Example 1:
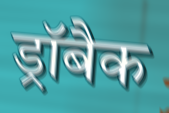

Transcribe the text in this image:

ड्रॉबैक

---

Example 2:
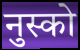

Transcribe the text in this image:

नुस्को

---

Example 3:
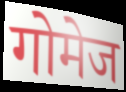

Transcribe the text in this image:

गोमेज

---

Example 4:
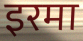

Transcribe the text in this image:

इरमा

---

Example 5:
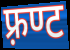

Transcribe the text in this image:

फ़्रण्ट